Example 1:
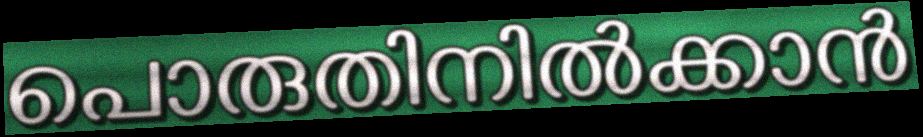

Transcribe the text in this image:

പൊരുതിനിൽക്കാൻ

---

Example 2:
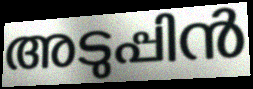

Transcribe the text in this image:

അടുപ്പിൻ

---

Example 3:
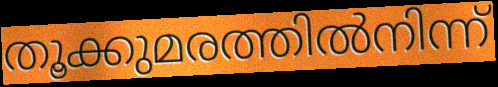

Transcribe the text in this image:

തൂക്കുമരത്തിൽനിന്ന്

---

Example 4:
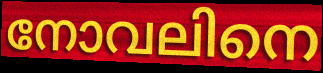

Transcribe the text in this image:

നോവലിനെ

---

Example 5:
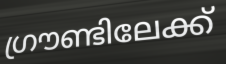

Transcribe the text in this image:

ഗ്രൗണ്ടിലേക്ക്